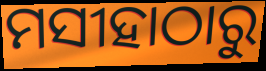
ମସୀହାଠାରୁ